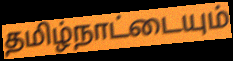
தமிழ்நாட்டையும்